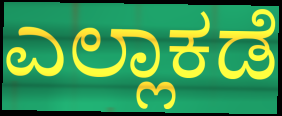
ಎಲ್ಲಾಕಡೆ